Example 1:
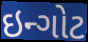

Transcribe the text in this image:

ઇન્ગોટ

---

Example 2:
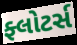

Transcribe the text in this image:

ફ્લોટર્સ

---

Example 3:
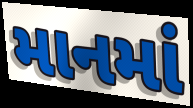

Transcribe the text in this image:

માનમાં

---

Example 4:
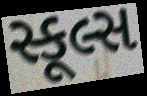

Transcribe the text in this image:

સ્કૂલ્સ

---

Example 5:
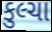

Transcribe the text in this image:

કુલ્ચા